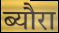
ब्यौरा